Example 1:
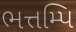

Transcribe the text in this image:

ભત્તમ્પિ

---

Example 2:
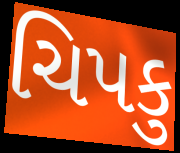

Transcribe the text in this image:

ચિપકુ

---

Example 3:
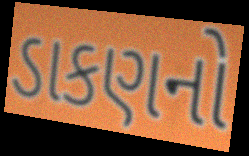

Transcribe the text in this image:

ડાકણનો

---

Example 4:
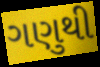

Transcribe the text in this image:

ગણુથી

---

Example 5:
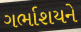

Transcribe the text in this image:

ગર્ભાશયને